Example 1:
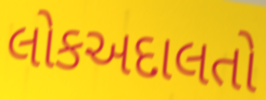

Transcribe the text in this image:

લોકઅદાલતો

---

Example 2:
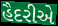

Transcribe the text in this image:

હૈદરીએ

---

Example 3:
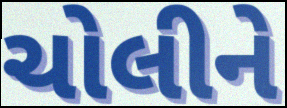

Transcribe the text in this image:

ચોલીને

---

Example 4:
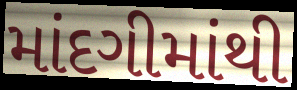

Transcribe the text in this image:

માંદગીમાંથી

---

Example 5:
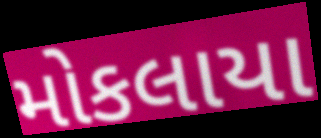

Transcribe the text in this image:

મોકલાયા